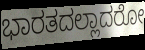
ಭಾರತದಲ್ಲಾದರೋ